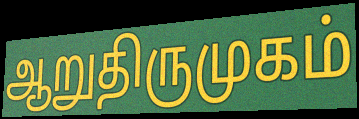
ஆறுதிருமுகம்